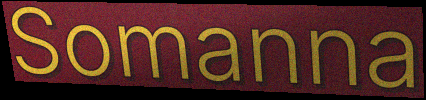
Somanna